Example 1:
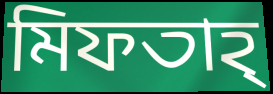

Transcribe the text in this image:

মিফতাহ্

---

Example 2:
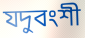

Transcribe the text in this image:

যদুবংশী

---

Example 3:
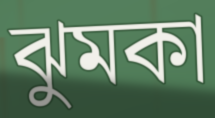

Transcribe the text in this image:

ঝুমকা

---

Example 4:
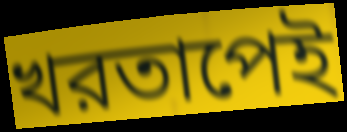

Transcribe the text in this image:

খরতাপেই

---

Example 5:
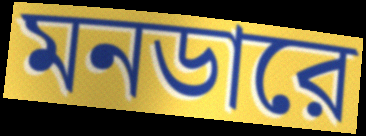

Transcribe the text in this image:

মনডারে